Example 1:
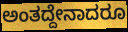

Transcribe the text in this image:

ಅಂತದ್ದೇನಾದರೂ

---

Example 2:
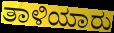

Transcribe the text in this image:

ತಾಳಿಯಾರು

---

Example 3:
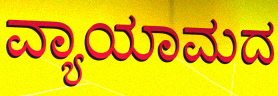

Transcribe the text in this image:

ವ್ಯಾಯಾಮದ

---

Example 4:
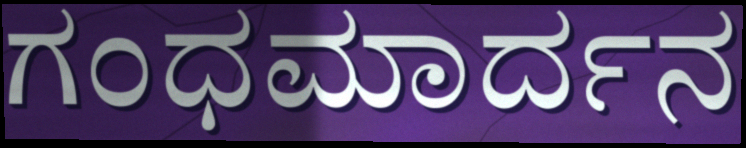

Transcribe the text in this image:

ಗಂಧಮಾರ್ದನ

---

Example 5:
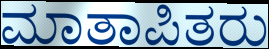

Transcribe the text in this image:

ಮಾತಾಪಿತರು